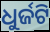
ଧୁର୍ଜଟି